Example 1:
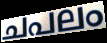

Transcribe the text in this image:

ചപലം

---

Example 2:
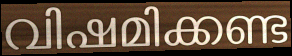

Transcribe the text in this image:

വിഷമിക്കണ്ട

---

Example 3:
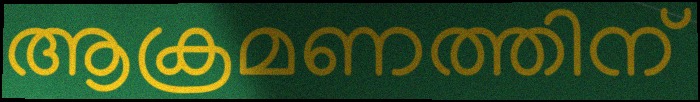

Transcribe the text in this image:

ആക്രമണത്തിന്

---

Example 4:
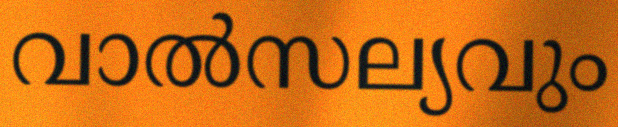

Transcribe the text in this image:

വാൽസല്യവും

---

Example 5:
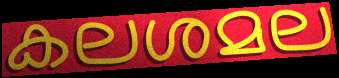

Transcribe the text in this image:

കലശമല